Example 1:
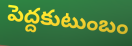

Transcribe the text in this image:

పెద్దకుటుంబం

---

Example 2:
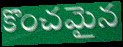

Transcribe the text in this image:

కొంచమైన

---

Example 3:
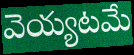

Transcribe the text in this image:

వెయ్యటమే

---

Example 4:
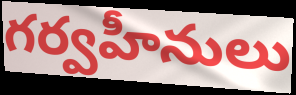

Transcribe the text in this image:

గర్వహీనులు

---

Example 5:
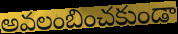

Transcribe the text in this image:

అవలంబించకుండా